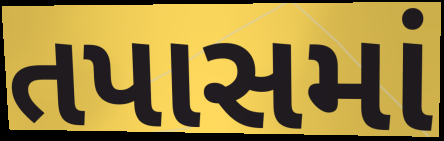
તપાસમાં